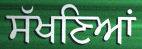
ਸੱਖਣਿਆਂ